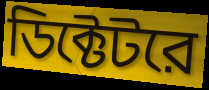
ডিক্টেটরে